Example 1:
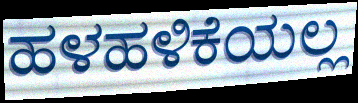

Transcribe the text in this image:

ಹಳಹಳಿಕೆಯಲ್ಲ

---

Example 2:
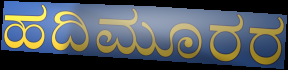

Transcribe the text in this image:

ಹದಿಮೂರರ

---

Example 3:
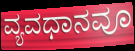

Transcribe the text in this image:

ವ್ಯವಧಾನವೂ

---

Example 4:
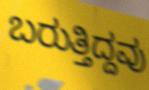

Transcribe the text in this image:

ಬರುತ್ತಿದ್ದವು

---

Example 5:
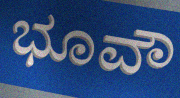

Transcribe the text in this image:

ಭೂವೌ